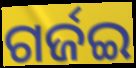
ଗର୍ଜଇ